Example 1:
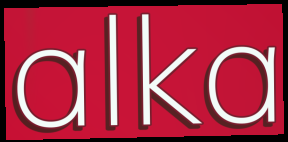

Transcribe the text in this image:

alka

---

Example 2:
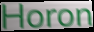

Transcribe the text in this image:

Horon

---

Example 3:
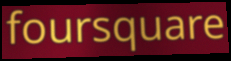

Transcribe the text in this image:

foursquare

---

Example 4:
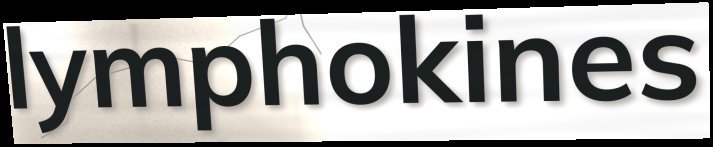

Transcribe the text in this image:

lymphokines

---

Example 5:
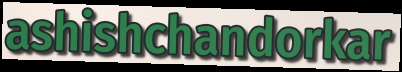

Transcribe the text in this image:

ashishchandorkar